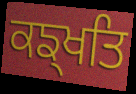
ਕਙ੍ਖਤਿ